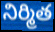
నిర్మిత